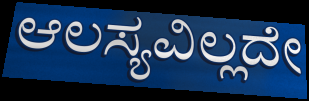
ಆಲಸ್ಯವಿಲ್ಲದೇ